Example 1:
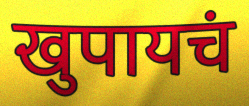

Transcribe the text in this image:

खुपायचं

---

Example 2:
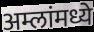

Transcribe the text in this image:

अम्लांमध्ये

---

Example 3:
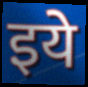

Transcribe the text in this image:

इये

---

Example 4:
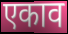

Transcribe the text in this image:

एकाव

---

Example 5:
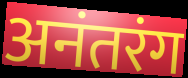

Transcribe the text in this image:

अनंतरंग